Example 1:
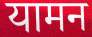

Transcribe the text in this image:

यामन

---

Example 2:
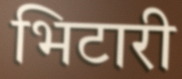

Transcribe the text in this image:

भिटारी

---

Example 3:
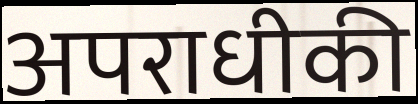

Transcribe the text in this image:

अपराधीकी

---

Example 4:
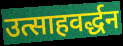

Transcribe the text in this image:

उत्साहवर्द्धन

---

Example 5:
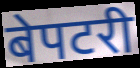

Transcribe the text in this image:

बेपटरी